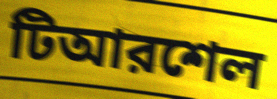
টিআরশেল